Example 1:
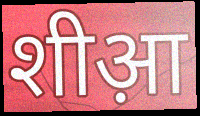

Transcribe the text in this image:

शीआ़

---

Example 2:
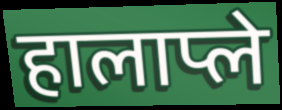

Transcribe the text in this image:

हालाप्ले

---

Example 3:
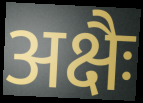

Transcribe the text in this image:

अक्षैः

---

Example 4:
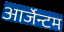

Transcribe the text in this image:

आर्जेन्टम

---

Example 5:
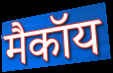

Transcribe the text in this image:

मैकॉय